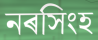
নৰসিংহ